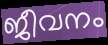
ജീവനം